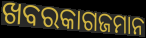
ଖବରକାଗଜମାନ